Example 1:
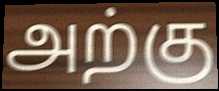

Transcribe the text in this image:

அற்கு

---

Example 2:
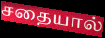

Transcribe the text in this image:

சதையால்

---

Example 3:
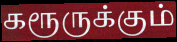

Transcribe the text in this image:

கரூருக்கும்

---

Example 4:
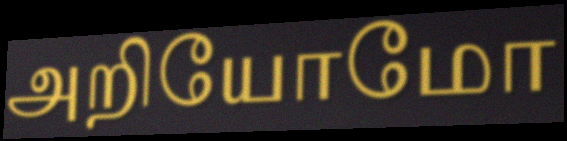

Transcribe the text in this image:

அறியோமோ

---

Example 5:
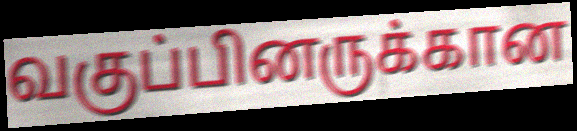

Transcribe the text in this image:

வகுப்பினருக்கான